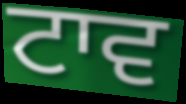
ਟਾਵ